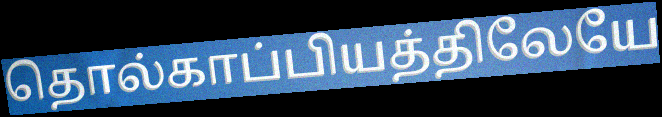
தொல்காப்பியத்திலேயே